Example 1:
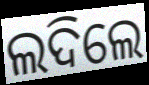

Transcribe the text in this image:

ଲଦିଲେ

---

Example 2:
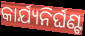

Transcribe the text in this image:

କାର୍ଯ୍ୟନିର୍ଘଣ୍ଟ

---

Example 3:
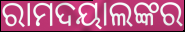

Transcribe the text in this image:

ରାମଦୟାଲଙ୍କର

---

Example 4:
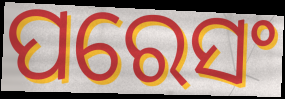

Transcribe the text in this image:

ପରେସଂ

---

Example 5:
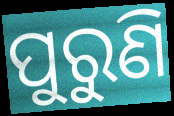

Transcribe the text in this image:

ପୁରୁଣି